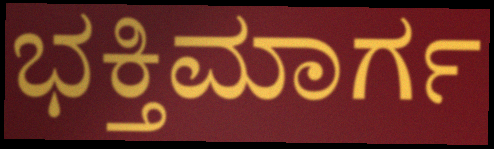
ಭಕ್ತಿಮಾರ್ಗ